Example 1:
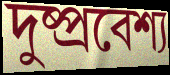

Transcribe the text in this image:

দুষ্প্রবেশ্য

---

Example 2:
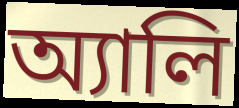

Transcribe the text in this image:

অ্যালি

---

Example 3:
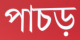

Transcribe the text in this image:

পাচড়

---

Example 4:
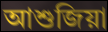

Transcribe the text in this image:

আশুজিয়া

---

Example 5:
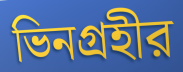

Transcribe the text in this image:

ভিনগ্রহীর